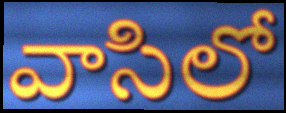
వాసిలో